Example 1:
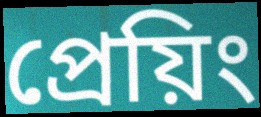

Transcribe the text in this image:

প্রেয়িং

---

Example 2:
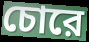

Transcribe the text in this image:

চোরে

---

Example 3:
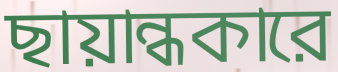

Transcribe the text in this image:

ছায়ান্ধকারে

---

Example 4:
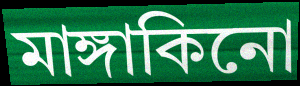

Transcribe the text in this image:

মাঙ্গাকিনো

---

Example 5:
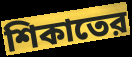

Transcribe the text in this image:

শিকাতের